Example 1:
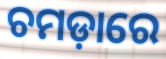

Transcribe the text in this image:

ଚମଡ଼ାରେ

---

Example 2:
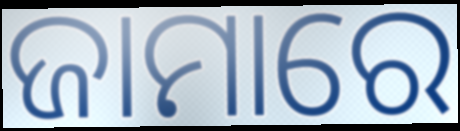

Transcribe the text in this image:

ଜାମାରେ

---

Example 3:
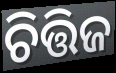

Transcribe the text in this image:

ଚିତ୍ତିଜ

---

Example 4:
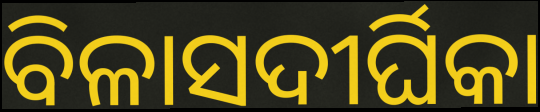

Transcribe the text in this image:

ବିଳାସଦୀର୍ଘିକା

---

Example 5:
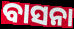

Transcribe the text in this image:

ବାସନା